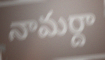
నామర్దా